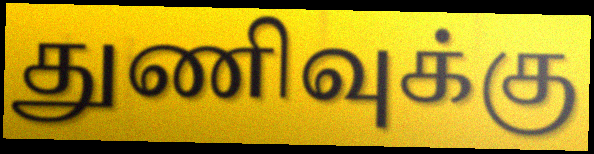
துணிவுக்கு